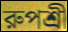
রুপশ্রী